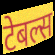
टेबल्स